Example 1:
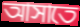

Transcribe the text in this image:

আসাতে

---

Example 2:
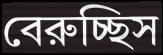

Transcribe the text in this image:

বেরুচ্ছিস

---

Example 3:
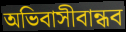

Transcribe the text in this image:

অভিবাসীবান্ধব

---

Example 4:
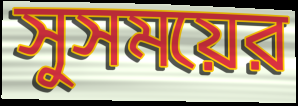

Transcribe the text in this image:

সুসময়ের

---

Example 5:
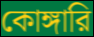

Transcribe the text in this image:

কোঙ্গারি